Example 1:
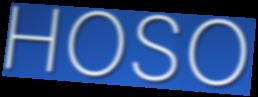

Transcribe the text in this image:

HOSO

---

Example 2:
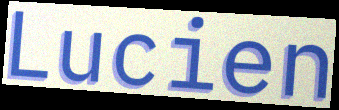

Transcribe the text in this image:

Lucien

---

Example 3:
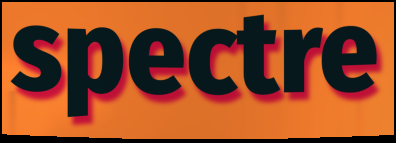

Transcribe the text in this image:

spectre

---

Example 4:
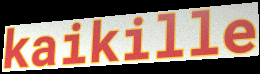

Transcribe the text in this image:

kaikille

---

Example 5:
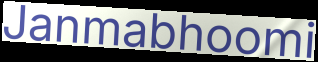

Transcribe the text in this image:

Janmabhoomi